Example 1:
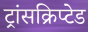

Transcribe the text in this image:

ट्रांसक्रिप्टेड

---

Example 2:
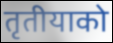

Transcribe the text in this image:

तृतीयाको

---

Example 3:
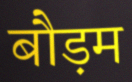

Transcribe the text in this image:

बौड़म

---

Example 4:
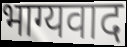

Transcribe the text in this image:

भाग्यवाद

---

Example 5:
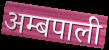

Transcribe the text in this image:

अम्बपाली